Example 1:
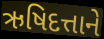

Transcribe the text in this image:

ઋષિદત્તાને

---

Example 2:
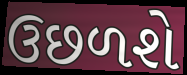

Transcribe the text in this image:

ઉછળશે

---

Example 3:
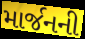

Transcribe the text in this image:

માર્જનની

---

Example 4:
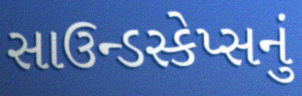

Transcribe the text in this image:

સાઉન્ડસ્કેપ્સનું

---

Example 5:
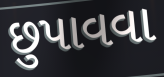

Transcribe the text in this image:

છુપાવવા